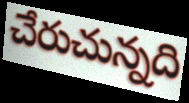
చేరుచున్నది